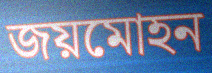
জয়মোহন